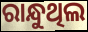
ରାନ୍ଧୁଥିଲ